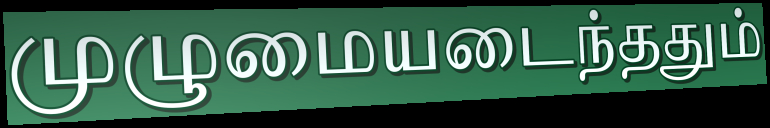
முழுமையடைந்ததும்